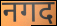
नगद